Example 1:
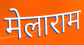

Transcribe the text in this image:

मेलाराम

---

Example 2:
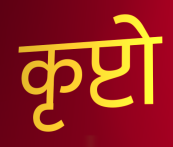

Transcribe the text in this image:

कृप्टो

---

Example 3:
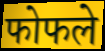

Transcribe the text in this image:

फोफले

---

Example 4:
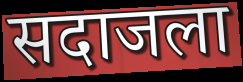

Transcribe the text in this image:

सदाजला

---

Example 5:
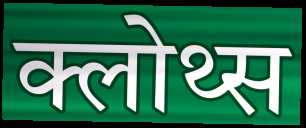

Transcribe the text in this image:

क्लोथ्स